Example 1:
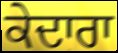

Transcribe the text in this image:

ਕੇਦਾਰਾ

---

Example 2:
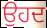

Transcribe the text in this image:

ਉਹਦ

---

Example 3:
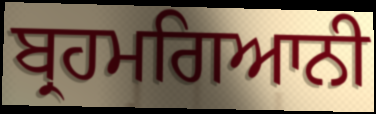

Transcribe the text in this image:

ਬ੍ਰਹਮਗਿਆਨੀ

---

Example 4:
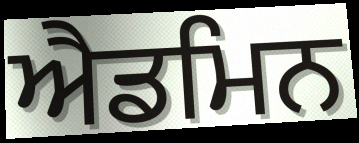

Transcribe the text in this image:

ਐਡਮਿਨ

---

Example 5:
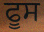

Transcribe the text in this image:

ਫੂਸ